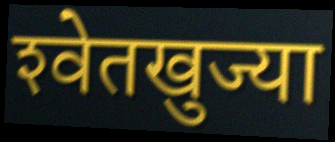
श्वेतखुज्या